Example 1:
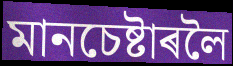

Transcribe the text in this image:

মানচেষ্টাৰলৈ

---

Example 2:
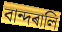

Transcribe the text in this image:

বান্দৰালি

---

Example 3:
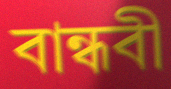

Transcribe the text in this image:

বান্ধবী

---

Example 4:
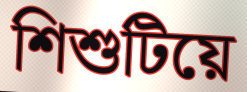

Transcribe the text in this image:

শিশুটিয়ে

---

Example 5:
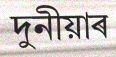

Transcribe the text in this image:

দুনীয়াৰ